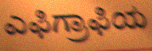
ಎಫಿಗ್ರಾಫಿಯ